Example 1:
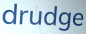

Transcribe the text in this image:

drudge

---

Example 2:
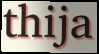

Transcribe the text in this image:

thija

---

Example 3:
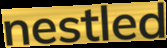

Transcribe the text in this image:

nestled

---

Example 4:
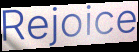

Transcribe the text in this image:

Rejoice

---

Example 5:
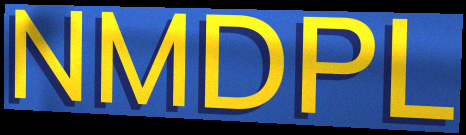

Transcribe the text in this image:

NMDPL